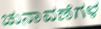
ಚುನಾವಣೆಗಳ